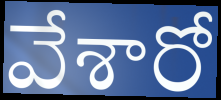
వేశారో